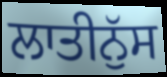
ਲਾਤੀਨੁੱਸ